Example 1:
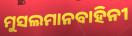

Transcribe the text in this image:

ମୁସଲମାନବାହିନୀ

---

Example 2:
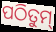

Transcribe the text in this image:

ପଠିତୁମ୍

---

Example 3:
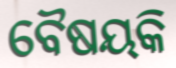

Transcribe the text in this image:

ବୈଷୟକି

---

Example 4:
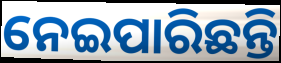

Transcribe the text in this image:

ନେଇପାରିଛନ୍ତି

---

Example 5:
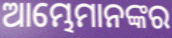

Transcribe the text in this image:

ଆମ୍ଭେମାନଙ୍କର